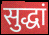
सुद्धां